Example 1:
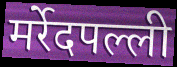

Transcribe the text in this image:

मर्रेदपल्ली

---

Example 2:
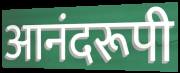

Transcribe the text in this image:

आनंदरूपी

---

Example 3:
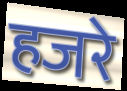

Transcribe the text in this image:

हजरे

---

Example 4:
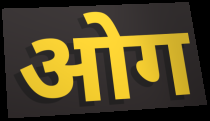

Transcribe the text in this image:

ओग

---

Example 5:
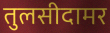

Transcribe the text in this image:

तुलसीदामर